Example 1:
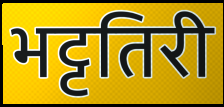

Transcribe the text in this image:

भट्टतिरी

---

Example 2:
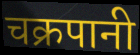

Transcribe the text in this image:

चक्रपानी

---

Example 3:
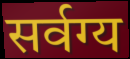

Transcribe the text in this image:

सर्वग्य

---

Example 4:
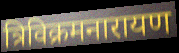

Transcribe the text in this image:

त्रिविक्रमनारायण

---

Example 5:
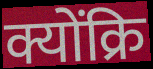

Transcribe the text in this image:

क्योंक्रि